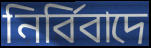
নিৰ্বিবাদে